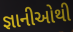
જ્ઞાનીઓથી